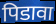
पिडावा